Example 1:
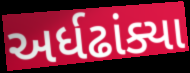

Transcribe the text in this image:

અર્ધઢાંક્યા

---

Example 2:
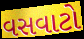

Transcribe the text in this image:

વસવાટો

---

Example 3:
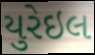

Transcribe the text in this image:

યુરેઇલ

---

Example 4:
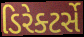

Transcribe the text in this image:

ડિરેક્ટર્સે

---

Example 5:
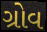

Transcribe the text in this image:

ગ્રોવ